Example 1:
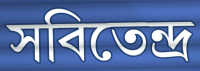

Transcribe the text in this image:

সবিতেন্দ্র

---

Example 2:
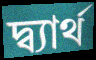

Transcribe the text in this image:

দ্ব্যার্থ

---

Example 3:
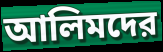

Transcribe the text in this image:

আলিমদের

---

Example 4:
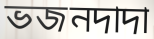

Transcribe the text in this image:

ভজনদাদা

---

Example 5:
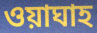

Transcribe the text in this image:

ওয়াঘাহ